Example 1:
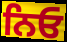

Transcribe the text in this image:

ਨਿਓ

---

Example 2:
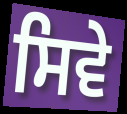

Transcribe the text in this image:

ਸਿਵੇ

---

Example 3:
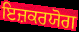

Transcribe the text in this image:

ਇਜ਼ਕਰਯੋਗ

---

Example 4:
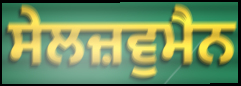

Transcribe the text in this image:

ਸੇਲਜ਼ਵੁਮੈਨ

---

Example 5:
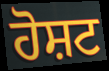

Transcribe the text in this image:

ਹੋਸ਼ਟ